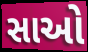
સાઓ